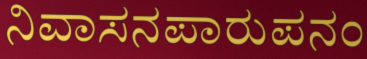
ನಿವಾಸನಪಾರುಪನಂ